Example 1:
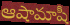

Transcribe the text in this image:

ఆషామాషీ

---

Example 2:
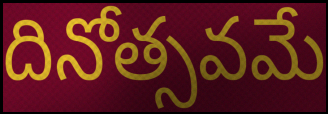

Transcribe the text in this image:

దినోత్సవమే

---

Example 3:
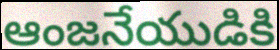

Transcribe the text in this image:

ఆంజనేయుడికి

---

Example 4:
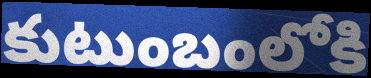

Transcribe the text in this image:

కుటుంబంలోకి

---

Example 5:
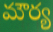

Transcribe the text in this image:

మౌర్య